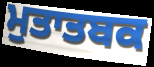
ਮੁਤਾਤਬਕ